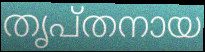
തൃപ്തനായ